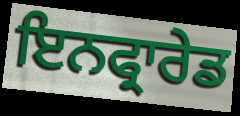
ਇਨਫ੍ਰਾਰੇਡ